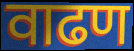
वाढण